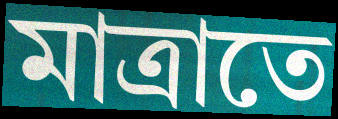
মাত্ৰাতে